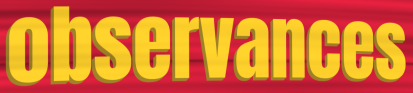
observances